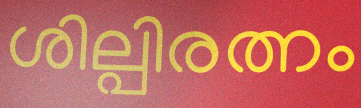
ശില്പിരത്നം